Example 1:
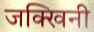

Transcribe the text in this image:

जक्खिनी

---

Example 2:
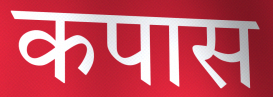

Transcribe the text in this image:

कपास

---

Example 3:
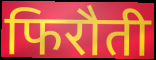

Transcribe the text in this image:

फिरौती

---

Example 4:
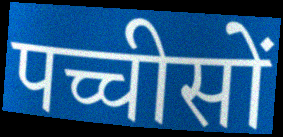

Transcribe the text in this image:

पच्चीसों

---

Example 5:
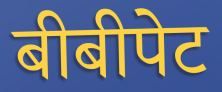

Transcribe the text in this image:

बीबीपेट